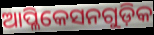
ଆପ୍ଳିକେସନଗୁଡ଼ିକ